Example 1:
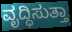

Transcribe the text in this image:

ವೃದ್ಧಿಸುತ್ತಾ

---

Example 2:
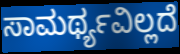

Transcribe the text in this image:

ಸಾಮರ್ಥ್ಯವಿಲ್ಲದೆ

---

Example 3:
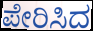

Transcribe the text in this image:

ಪೇರಿಸಿದ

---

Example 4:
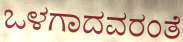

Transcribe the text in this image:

ಒಳಗಾದವರಂತೆ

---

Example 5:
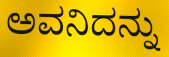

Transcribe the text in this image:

ಅವನಿದನ್ನು